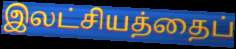
இலட்சியத்தைப்